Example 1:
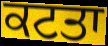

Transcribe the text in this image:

ਕਟਤਾ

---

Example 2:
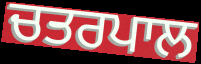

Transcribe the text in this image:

ਚਤਰਪਾਲ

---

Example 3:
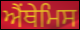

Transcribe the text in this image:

ਐਂਥੇਮਿਸ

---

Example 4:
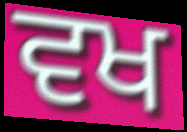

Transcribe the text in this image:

ਵਖ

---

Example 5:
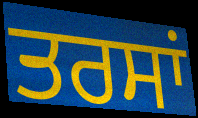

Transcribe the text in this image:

ਤਰਸਾਂ